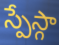
స్పేస్గా